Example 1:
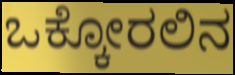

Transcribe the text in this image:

ಒಕ್ಕೋರಲಿನ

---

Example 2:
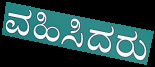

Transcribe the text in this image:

ವಹಿಸಿದರು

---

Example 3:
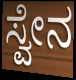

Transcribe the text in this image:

ಸ್ವೇನ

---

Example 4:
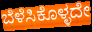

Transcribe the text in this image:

ಬೆಳೆಸಿಕೊಳ್ಳದೇ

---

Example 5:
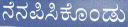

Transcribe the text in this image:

ನೆನಪಿಸಿಕೊಂಡು